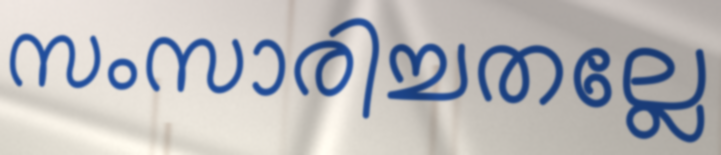
സംസാരിച്ചതല്ലേ